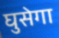
घुसेगा